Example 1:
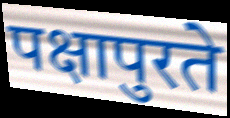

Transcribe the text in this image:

पक्षापुरते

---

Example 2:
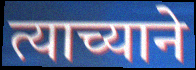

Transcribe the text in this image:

त्याच्याने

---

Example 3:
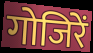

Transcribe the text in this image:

गोजिरें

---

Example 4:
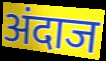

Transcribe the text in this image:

अंदाज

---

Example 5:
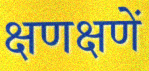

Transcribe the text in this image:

क्षणक्षणें